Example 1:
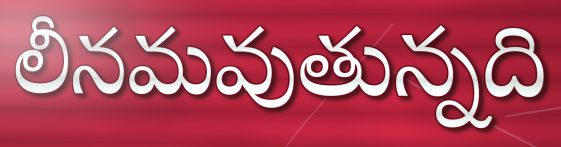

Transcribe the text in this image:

లీనమవుతున్నది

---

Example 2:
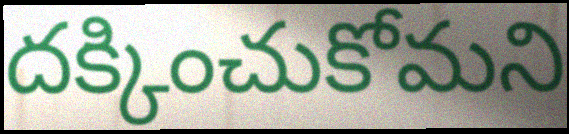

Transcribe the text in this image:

దక్కించుకోమని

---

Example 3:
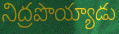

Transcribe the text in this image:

నిద్రపొయ్యాడు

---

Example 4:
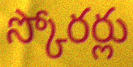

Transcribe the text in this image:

స్కోరర్లు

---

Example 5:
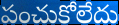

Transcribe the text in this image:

పంచుకోలేదు